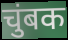
चुंबक